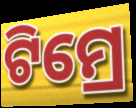
ଟିମ୍ରେ